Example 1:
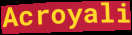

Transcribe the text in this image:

Acroyali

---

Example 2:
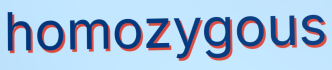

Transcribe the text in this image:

homozygous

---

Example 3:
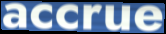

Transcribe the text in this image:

accrue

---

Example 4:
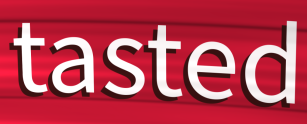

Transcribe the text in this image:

tasted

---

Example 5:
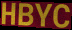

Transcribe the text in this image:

HBYC